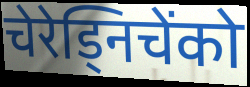
चेरेड्निचेंको